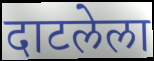
दाटलेला